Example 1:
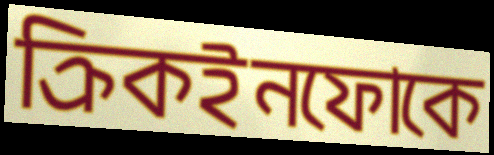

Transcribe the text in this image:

ক্রিকইনফোকে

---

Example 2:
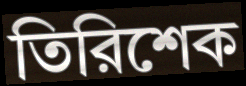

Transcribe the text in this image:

তিরিশেক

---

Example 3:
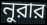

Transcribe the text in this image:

নুরার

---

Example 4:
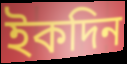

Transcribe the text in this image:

ইকদিন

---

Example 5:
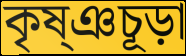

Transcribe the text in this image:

কৃষ্ঞচূড়া